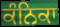
ਕੰਨਿਕਾ